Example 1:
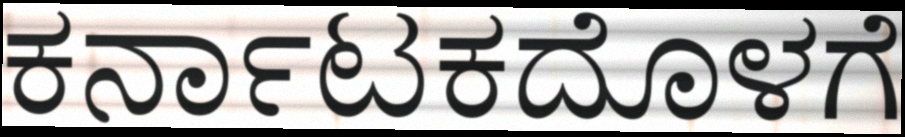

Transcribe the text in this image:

ಕರ್ನಾಟಕದೊಳಗೆ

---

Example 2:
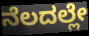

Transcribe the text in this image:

ನೆಲದಲ್ಲೇ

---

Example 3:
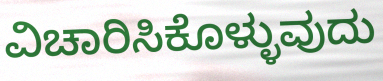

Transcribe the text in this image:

ವಿಚಾರಿಸಿಕೊಳ್ಳುವುದು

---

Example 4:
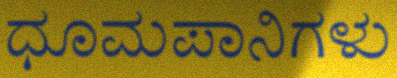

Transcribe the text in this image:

ಧೂಮಪಾನಿಗಳು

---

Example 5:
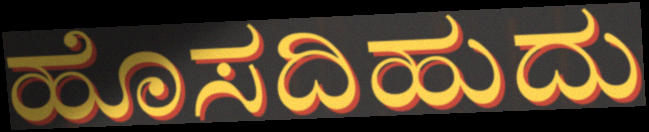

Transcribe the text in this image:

ಹೊಸದಿಹುದು